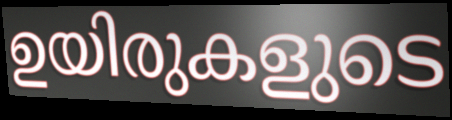
ഉയിരുകളുടെ